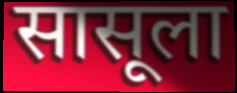
सासूला